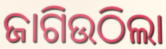
ଜାଗିଉଠିଲା